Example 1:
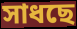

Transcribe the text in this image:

সাধছে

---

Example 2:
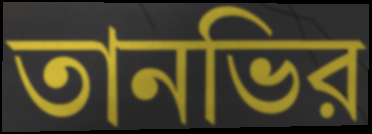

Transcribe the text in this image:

তানভির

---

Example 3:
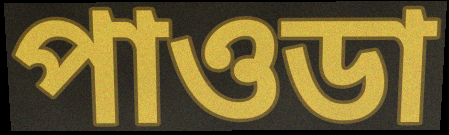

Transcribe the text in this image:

পাওডা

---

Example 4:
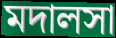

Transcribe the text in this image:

মদালসা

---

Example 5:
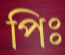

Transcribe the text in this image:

পিঃ